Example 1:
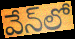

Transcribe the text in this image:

వేన్‌లో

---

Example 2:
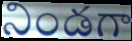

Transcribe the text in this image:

నిండగా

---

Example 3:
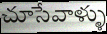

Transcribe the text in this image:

చూసేవాళ్ళు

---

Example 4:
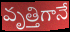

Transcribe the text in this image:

వృత్తిగానే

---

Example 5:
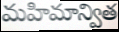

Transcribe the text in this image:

మహిమాన్విత